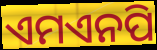
ଏମଏନପି